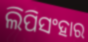
ଲିପିସଂହାର